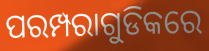
ପରମ୍ପରାଗୁଡିକରେ